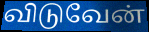
விடுவேன்